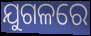
ଯୁଗଳରେ